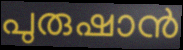
പുരുഷാൻ